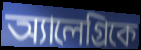
অ্যালেগ্রিকে